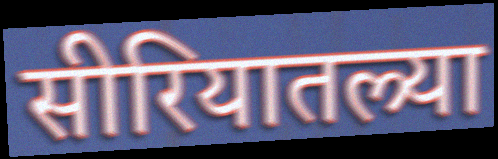
सीरियातल्या